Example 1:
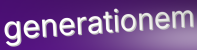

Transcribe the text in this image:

generationem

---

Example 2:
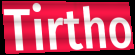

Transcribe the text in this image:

Tirtho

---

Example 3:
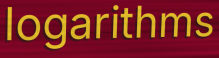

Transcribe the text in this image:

logarithms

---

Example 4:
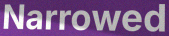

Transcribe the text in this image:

Narrowed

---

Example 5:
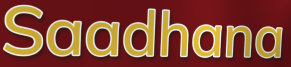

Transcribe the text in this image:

Saadhana